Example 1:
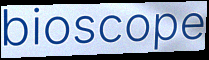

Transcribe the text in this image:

bioscope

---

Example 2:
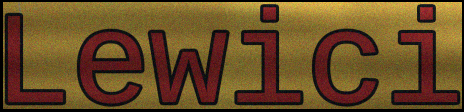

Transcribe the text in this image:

Lewici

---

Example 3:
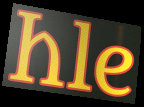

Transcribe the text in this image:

hle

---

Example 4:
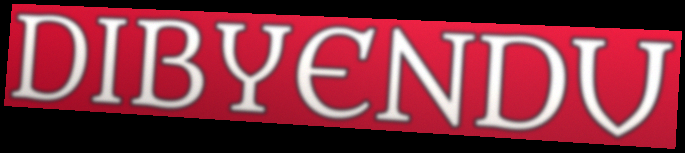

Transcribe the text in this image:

DIBYENDU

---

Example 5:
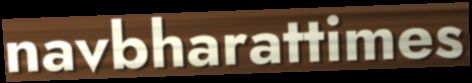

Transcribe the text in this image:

navbharattimes